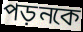
পড়নকে